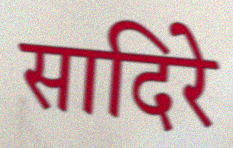
सादिरे